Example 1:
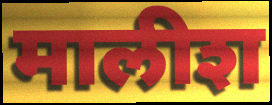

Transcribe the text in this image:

मालीश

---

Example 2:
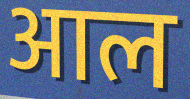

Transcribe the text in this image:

आल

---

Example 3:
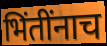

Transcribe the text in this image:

भिंतींनाच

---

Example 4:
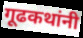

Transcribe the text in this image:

गूढकथांनी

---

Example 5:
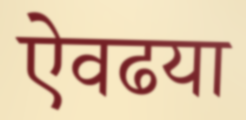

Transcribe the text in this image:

ऐवढया